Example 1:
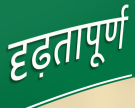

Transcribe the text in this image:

दृढ़तापूर्ण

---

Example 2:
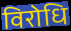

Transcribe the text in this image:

विरोधि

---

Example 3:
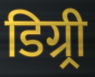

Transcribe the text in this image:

डिग्र्री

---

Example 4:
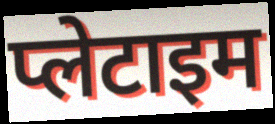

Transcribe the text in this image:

प्लेटाइम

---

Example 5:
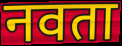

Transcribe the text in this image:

नवता